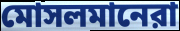
মোসলমানেরা